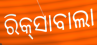
ରିକ୍‍ସାବାଲା